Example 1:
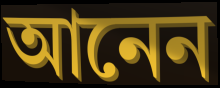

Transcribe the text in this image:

আনেন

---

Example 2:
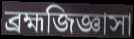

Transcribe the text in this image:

ব্রহ্মজিজ্ঞাসা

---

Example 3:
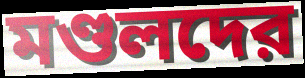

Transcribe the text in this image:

মণ্ডলদের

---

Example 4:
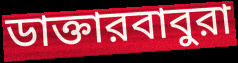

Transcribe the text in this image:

ডাক্তারবাবুরা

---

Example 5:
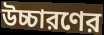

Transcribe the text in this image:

উচ্চারণের